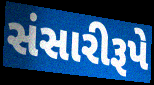
સંસારીરૂપે